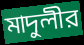
মাদুলীর